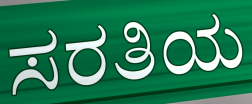
ಸರತಿಯ